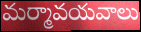
మర్మావయవాలు